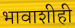
भावाशीही